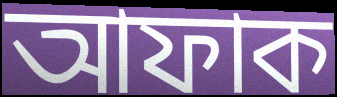
আফাক